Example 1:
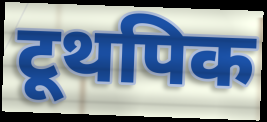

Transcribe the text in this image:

टूथपिक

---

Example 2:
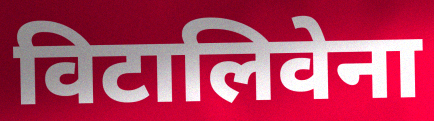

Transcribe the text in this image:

विटालिवेना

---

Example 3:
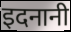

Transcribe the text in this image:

इदनानी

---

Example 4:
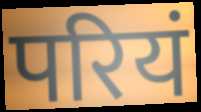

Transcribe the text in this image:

परियं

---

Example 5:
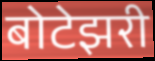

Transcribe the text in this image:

बोटेझरी